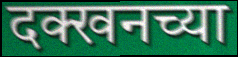
दक्खनच्या